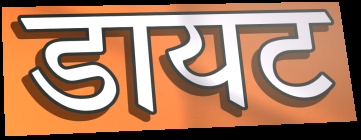
डायट